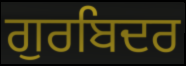
ਗੁਰਬਿਦਰ